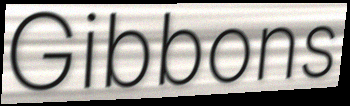
Gibbons